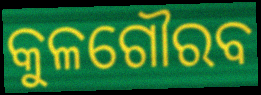
କୁଳଗୌରବ